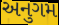
અનુગમ